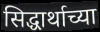
सिद्धार्थाच्या